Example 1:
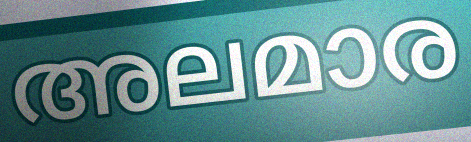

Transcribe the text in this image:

അലമാര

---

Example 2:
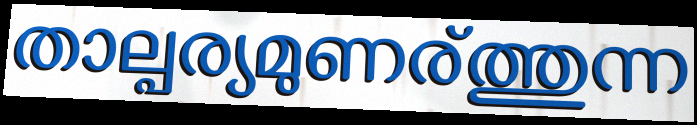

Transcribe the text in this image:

താല്പര്യമുണര്ത്തുന്ന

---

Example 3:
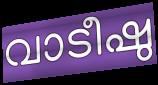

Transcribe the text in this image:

വാടീഷു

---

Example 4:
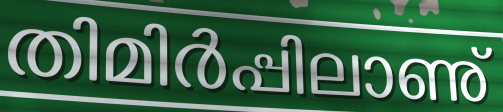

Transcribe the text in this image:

തിമിർപ്പിലാണു്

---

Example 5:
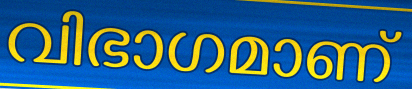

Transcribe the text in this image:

വിഭാഗമാണ്